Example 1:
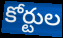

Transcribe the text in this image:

కోర్టుల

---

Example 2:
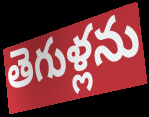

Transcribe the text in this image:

తెగుళ్లను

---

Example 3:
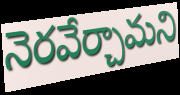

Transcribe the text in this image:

నెరవేర్చామని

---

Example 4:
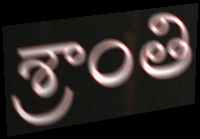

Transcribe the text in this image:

శ్రాంతి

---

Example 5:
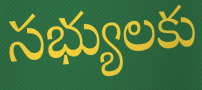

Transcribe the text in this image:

సభ్యులకు